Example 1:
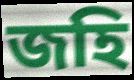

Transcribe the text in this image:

জহি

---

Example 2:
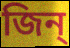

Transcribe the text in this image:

জিন্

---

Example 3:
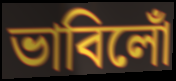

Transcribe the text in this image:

ভাবিলোঁ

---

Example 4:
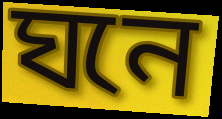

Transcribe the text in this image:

ঘনে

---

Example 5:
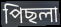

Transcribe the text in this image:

পিছলা